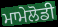
ਮਾਮੇਲੋਡੀ